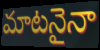
మాటనైనా